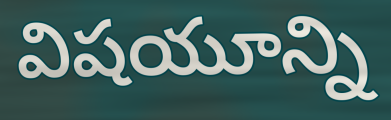
విషయూన్ని